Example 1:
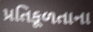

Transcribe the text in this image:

પ્રતિકૂળતાના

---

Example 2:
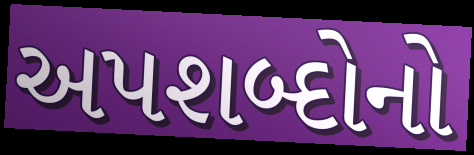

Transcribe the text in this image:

અપશબ્દોનો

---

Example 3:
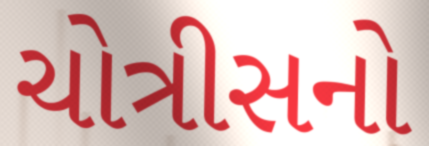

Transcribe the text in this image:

ચોત્રીસનો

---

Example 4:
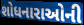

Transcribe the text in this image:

શોધનારાઓની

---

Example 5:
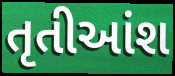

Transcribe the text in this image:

તૃતીઆંશ